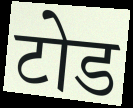
टोड